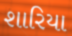
શારિયા